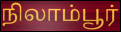
நிலாம்பூர்